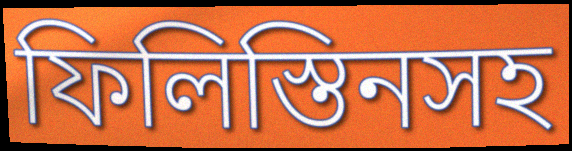
ফিলিস্তিনসহ